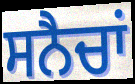
ਸਨੈਚਾਂ